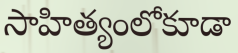
సాహిత్యంలోకూడా